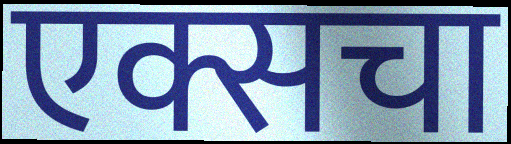
एक्सचा